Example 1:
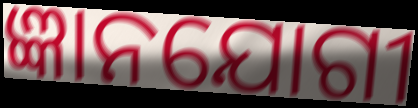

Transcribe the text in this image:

ଜ୍ଞାନଯୋଗୀ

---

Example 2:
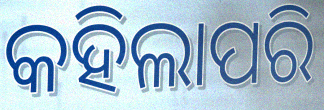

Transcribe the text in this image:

କହିଲାପରି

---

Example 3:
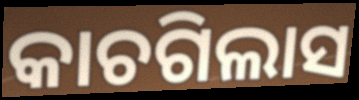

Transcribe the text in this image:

କାଚଗିଲାସ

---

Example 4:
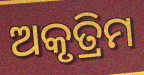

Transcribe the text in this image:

ଅକୃତ୍ରିମ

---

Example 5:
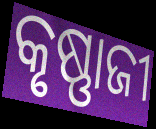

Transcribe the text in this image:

କୃଷ୍ଣାଜୀ